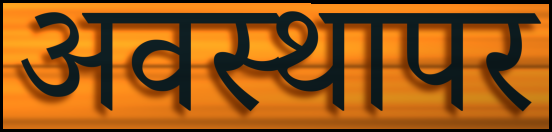
अवस्थापर